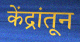
केंद्रांतून